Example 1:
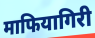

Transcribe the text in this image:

माफियागिरी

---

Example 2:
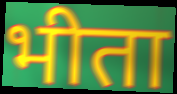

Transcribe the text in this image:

भीता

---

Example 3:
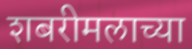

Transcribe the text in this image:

शबरीमलाच्या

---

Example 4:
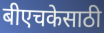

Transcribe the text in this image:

बीएचकेसाठी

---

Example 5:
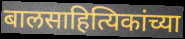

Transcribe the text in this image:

बालसाहित्यिकांच्या